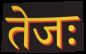
तेजः